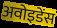
अवोइडेंस